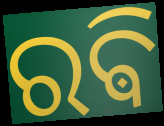
ରଵି